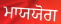
ਮਾਯਯੋਗ